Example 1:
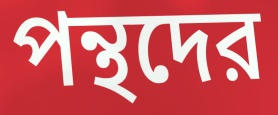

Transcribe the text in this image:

পন্থদের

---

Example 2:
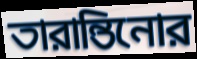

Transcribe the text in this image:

তারান্তিনোর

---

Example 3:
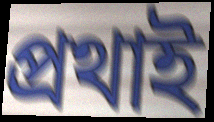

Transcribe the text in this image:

প্রথাই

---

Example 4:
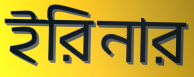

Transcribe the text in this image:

ইরিনার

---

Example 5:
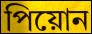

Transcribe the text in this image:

পিয়োন